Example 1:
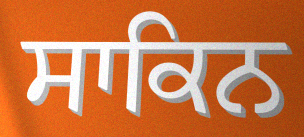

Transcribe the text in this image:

ਸਾਕਿਨ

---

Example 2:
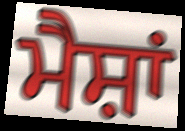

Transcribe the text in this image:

ਮੈਸ਼ਾਂ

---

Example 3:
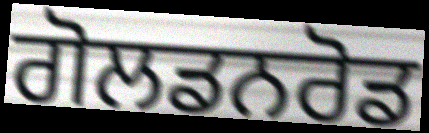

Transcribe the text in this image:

ਗੋਲਡਨਰੋਡ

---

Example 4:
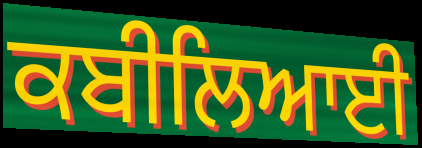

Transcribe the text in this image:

ਕਬੀਲਿਆਈ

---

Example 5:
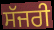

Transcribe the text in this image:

ਸੱਜਰੀ